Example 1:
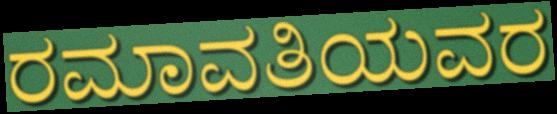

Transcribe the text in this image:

ರಮಾವತಿಯವರ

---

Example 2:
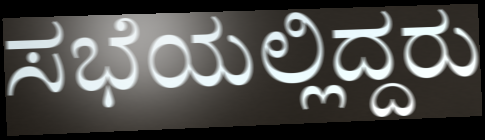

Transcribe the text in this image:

ಸಭೆಯಲ್ಲಿದ್ದರು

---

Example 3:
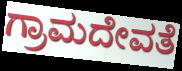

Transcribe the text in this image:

ಗ್ರಾಮದೇವತೆ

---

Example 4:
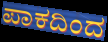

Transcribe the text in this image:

ಪಾಕದಿಂದ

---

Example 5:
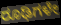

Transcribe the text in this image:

ರೂಢಿಗಳೇ